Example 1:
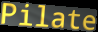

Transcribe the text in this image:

Pilate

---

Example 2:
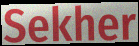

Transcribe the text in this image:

Sekher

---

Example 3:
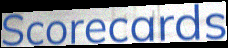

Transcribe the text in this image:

Scorecards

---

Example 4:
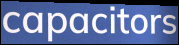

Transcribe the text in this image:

capacitors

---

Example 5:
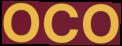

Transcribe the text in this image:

OCO